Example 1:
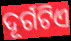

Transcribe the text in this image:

ଦୂର୍ଗଟିଏ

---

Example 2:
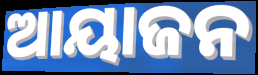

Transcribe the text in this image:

ଆୟାଜନ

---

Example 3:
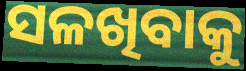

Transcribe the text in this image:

ସଳଖିବାକୁ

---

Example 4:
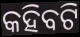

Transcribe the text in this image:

କହିବଟି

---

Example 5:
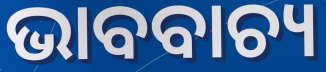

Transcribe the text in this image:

ଭାବବାଚ୍ୟ